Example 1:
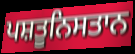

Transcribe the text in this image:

ਪਸ਼ਤੂਨਿਸਤਾਨ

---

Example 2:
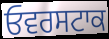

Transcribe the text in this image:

ਓਵਰਸਟਾਕ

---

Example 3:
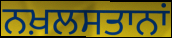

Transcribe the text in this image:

ਨਖ਼ਲਸਤਾਨਾਂ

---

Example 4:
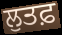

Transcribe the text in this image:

ਲੁਤਫ਼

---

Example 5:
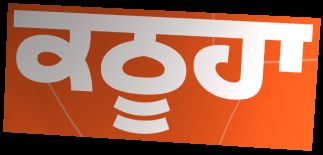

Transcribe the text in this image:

ਕਠੂਹਾ